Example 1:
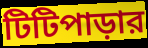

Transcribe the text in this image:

টিটিপাড়ার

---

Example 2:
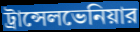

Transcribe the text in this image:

ট্রান্সেলভেনিয়ার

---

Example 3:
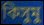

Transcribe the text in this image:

কিসুমু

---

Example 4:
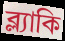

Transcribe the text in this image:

ব্ল্যাকি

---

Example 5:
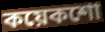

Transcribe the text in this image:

কয়েকশো